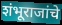
शंभूराजांचे